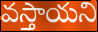
వస్తాయని